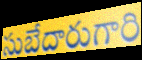
సుబేదారుగారి